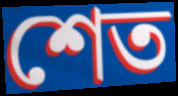
শেত